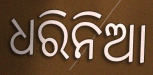
ଧରିନିଆ